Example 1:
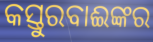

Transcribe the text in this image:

କସ୍ତୁରବାଈଙ୍କର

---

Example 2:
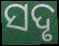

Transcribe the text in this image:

ସଦୃ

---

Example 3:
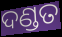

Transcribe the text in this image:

ଦଣ୍ଡତ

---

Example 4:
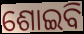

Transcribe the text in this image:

ଶୋଇବି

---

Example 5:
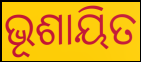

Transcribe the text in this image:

ଭୂଶାୟିତ